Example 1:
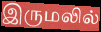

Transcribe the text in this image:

இருமலில்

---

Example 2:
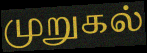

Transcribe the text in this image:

முறுகல்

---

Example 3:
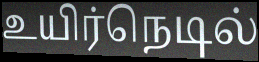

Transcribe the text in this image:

உயிர்நெடில்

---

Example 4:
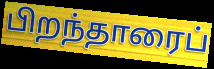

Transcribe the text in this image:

பிறந்தாரைப்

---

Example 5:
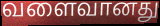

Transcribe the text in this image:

வளைவானது